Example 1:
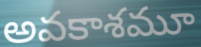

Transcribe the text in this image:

అవకాశమూ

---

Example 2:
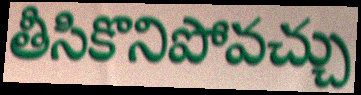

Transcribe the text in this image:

తీసికొనిపోవచ్చు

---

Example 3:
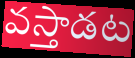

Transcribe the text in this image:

వస్తాడట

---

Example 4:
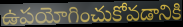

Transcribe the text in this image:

ఉపయోగించుకోవడానికి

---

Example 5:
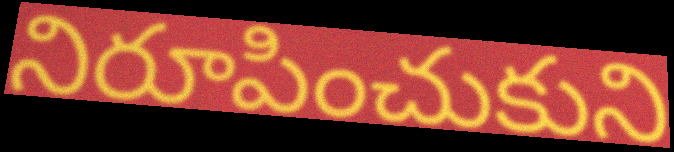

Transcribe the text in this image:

నిరూపించుకుని